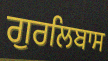
ਗੁਰਲਿਬਾਸ